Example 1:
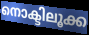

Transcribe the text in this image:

നൊക്ടിലൂക്ക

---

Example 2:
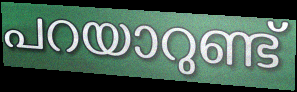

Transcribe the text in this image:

പറയാറുണ്ട്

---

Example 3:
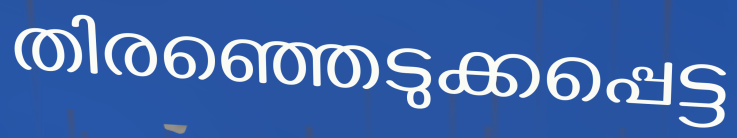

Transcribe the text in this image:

തിരഞ്ഞെടുക്കപ്പെട്ട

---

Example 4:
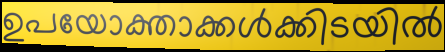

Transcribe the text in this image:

ഉപയോക്താക്കൾക്കിടയിൽ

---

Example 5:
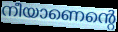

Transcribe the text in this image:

നീയാണെന്റെ